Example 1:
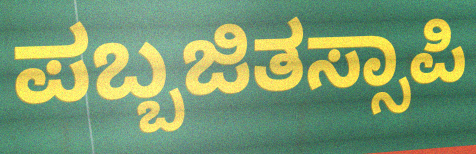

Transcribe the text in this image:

ಪಬ್ಬಜಿತಸ್ಸಾಪಿ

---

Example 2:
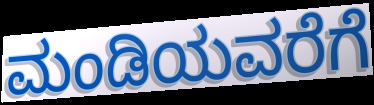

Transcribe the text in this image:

ಮಂಡಿಯವರೆಗೆ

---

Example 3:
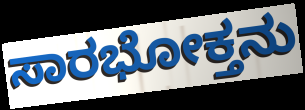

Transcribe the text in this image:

ಸಾರಭೋಕ್ತನು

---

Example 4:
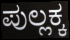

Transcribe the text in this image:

ಪುಲ್ಲಕ್ಕ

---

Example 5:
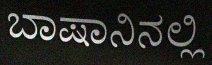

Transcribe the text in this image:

ಬಾಷಾನಿನಲ್ಲಿ